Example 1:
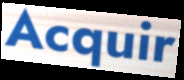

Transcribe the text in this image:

Acquir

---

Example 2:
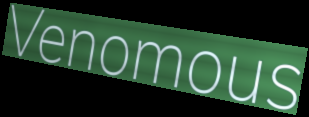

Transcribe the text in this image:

Venomous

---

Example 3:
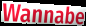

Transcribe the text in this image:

Wannabe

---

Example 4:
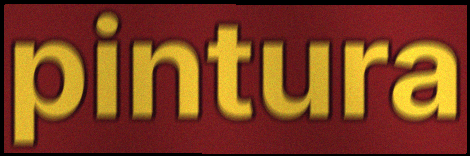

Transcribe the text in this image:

pintura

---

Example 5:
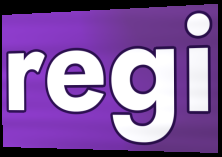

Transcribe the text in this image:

regi